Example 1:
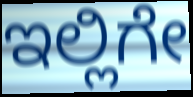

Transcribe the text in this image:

ಇಲ್ಲಿಗೇ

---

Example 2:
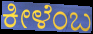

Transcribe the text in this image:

ಕೀಳೆಂಬ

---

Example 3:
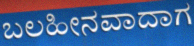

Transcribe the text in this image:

ಬಲಹೀನವಾದಾಗ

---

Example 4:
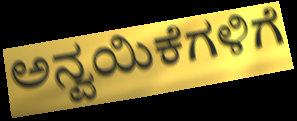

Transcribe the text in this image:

ಅನ್ವಯಿಕೆಗಳಿಗೆ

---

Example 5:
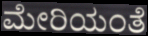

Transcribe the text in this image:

ಮೇರಿಯಂತೆ